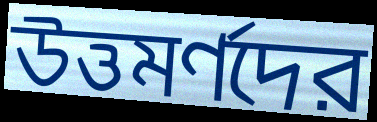
উত্তমর্ণদের